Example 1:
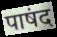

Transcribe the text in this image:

पाषंद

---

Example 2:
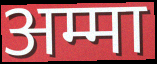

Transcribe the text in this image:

अम्‍मा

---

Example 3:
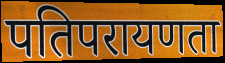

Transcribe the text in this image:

पतिपरायणता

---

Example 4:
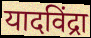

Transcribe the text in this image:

यादविंद्रा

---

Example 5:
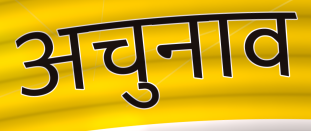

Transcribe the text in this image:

अचुनाव